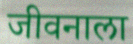
जीवनाला